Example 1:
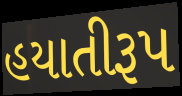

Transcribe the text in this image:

હયાતીરૂપ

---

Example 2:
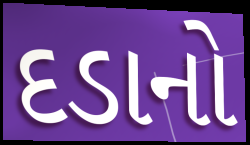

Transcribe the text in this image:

દડાનો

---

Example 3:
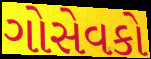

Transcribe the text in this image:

ગોસેવકો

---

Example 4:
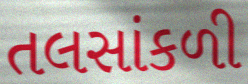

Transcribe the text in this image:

તલસાંકળી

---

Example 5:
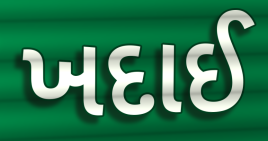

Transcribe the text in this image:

ખદાઈ